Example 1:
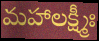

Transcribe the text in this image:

మహాలక్ష్మీః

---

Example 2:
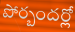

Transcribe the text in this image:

పోర్బందర్లో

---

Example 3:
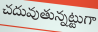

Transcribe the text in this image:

చదువుతున్నట్టుగా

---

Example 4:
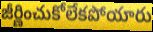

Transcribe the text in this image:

జీర్ణించుకోలేకపోయారు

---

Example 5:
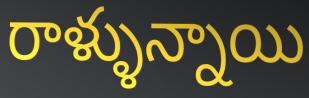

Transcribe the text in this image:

రాళ్ళున్నాయి